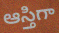
ఆస్తిగా